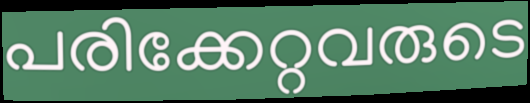
പരിക്കേറ്റവരുടെ